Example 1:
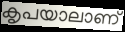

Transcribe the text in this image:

കൃപയാലാണ്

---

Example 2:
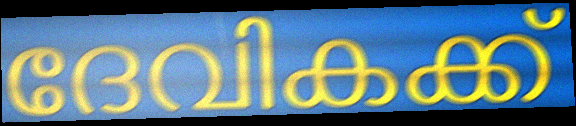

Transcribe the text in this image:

ദേവികക്ക്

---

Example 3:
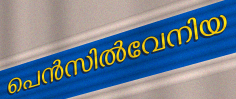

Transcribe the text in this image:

പെൻസിൽവേനിയ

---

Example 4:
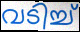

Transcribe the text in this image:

വടിച്ച്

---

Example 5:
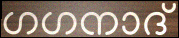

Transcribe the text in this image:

ഗഗനാദ്